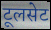
टूलसेट